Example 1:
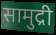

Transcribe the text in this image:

सामुद्री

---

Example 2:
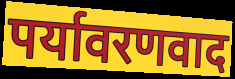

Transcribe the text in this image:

पर्यावरणवाद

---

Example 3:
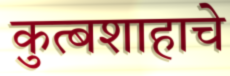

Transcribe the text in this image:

कुत्बशाहाचे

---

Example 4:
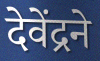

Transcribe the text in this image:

देवेंद्रने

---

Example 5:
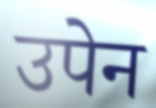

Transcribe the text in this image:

उपेन